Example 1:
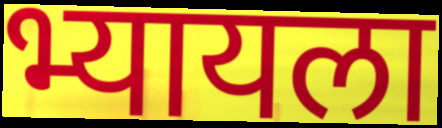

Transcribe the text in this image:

भ्यायला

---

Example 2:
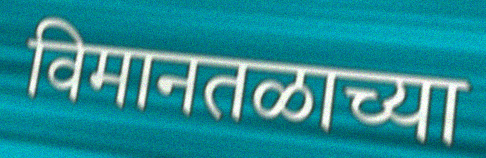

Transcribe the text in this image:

विमानतळाच्या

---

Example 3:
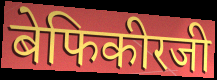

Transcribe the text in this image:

बेफिकीरजी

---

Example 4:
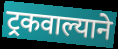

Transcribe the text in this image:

ट्रकवाल्याने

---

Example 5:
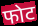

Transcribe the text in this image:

फोट